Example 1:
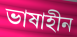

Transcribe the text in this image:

ভাষাহীন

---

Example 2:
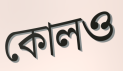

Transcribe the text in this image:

কোলও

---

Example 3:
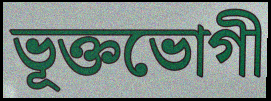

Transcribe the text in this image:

ভূক্তভোগী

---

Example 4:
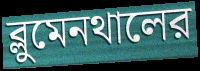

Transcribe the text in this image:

ব্লুমেনথালের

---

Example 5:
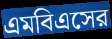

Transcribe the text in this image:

এমবিএসের